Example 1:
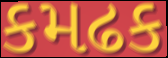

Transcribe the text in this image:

કમઢક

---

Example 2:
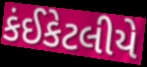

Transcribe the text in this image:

કંઈકેટલીયે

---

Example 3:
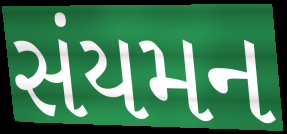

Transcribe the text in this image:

સંયમન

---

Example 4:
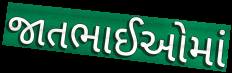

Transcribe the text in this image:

જાતભાઈઓમાં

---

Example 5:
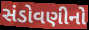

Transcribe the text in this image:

સંડોવણીનો